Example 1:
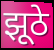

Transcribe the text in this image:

झूठे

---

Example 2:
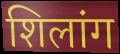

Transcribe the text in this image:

शिलांग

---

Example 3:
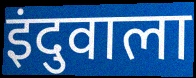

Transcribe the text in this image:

इंदुवाला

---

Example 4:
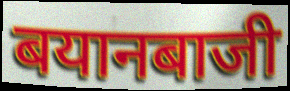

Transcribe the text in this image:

बयानबाजी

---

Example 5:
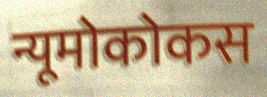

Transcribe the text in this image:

न्यूमोकोकस